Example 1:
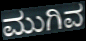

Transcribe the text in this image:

ಮುಗಿವ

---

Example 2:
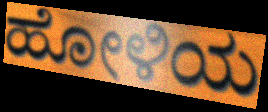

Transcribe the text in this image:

ಹೋಳಿಯ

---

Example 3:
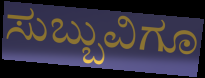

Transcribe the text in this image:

ಸುಬ್ಬುವಿಗೂ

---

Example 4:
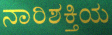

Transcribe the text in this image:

ನಾರಿಶಕ್ತಿಯ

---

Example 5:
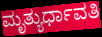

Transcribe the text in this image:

ಮೃತ್ಯುರ್ಧಾವತಿ